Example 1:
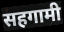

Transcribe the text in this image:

सहगामी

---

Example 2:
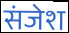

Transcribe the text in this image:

संजेश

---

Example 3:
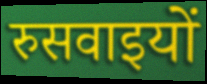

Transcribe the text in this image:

रुसवाइयों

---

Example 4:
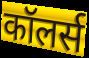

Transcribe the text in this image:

कॉलर्स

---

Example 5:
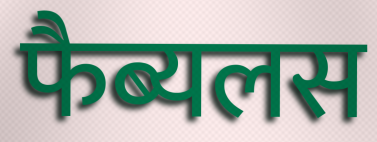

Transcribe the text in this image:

फैब्यलस